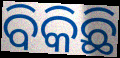
ବିକିଛି